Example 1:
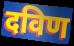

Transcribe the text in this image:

दविण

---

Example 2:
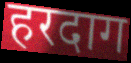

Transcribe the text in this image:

हरदाग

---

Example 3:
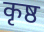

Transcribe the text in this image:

कृष्ठ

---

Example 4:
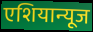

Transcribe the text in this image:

एशियान्यूज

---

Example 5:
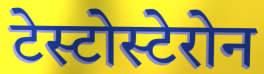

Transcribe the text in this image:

टेस्‍टोस्‍टेरोन